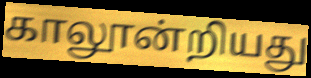
காலூன்றியது